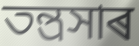
তন্ত্ৰসাৰ